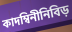
কাদম্বিনীনিবিড়